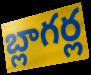
బ్లాగర్ల